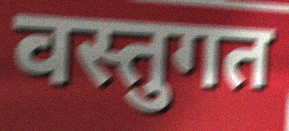
वस्तुगत